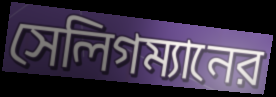
সেলিগম্যানের